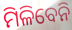
ମିଳିବେନି